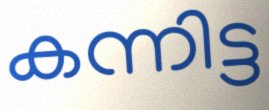
കന്നിട്ട